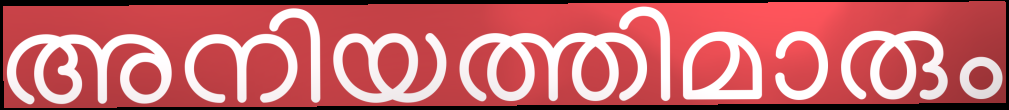
അനിയത്തിമാരും